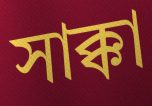
সাক্কা